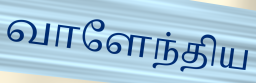
வாளேந்திய